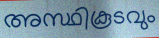
അസ്ഥികൂടവും